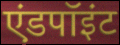
एंडपॉइंट